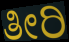
ತೀರಿ